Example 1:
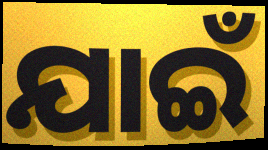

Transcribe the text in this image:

ଯାଇଁ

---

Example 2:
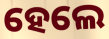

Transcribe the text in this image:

ହେଲେ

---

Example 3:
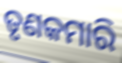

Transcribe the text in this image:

ତୃଣକମାରି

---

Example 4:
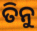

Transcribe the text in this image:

ତିନୁ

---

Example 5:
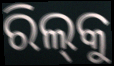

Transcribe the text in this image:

ରିଲ୍‌କୁ